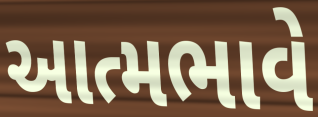
આત્મભાવે